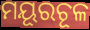
ମୟୂରଚୂଳ